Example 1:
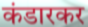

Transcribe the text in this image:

कंडारकर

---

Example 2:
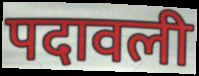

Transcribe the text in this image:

पदावली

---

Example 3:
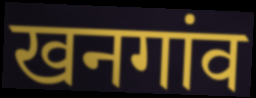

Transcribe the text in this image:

खनगांव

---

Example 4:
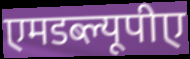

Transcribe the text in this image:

एमडब्ल्यूपीए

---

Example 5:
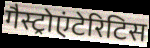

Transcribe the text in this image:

गैस्ट्रोएंटेरिटिस